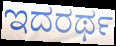
ಇದರರ್ಥ